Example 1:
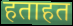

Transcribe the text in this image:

हताहत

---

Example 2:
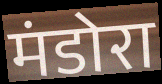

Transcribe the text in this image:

मंडोरा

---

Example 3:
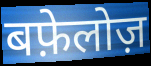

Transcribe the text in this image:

बफ़ेलोज़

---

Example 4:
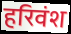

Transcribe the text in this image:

हरिवंश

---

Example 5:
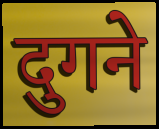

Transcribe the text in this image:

दुगने